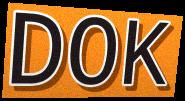
DOK